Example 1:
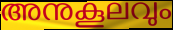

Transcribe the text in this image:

അനുകൂലവും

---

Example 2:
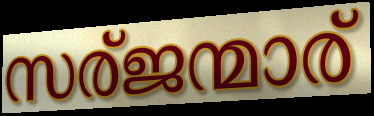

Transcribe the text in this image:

സര്ജന്മാര്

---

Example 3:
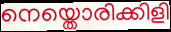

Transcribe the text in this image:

നെയ്തൊരിക്കിളി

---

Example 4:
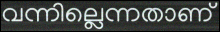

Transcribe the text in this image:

വന്നില്ലെന്നതാണ്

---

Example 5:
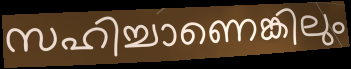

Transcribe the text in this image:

സഹിച്ചാണെങ്കിലും